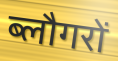
ब्लौगरों